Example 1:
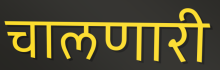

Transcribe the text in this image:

चालणारी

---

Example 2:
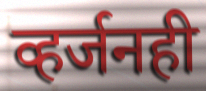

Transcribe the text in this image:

व्हर्जनही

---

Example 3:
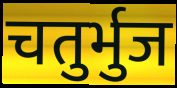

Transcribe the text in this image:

चतुर्भुज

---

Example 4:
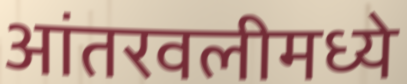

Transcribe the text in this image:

आंतरवलीमध्ये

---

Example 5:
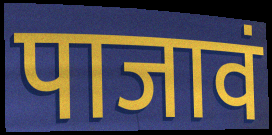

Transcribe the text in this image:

पाजावं